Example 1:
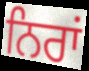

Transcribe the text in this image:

ਨਿਰਾਂ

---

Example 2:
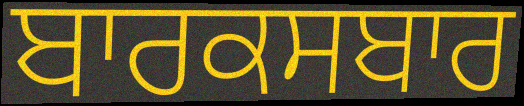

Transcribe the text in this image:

ਬਾਰਕਸਬਾਰ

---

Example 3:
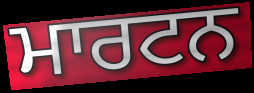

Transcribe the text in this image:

ਮਾਰਟਨ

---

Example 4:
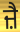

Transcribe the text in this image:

ਜ਼ੈ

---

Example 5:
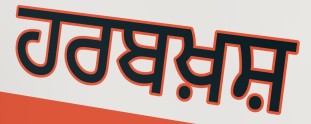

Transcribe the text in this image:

ਹਰਬਖ਼ਸ਼